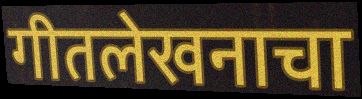
गीतलेखनाचा